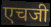
एचजी